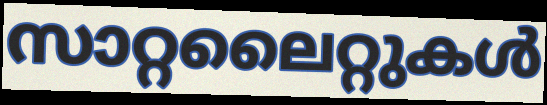
സാറ്റലൈറ്റുകൾ